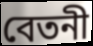
বেতনী